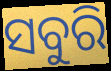
ସବୁରି